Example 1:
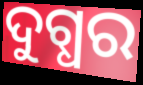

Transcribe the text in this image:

ଦୁଗ୍ଧର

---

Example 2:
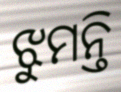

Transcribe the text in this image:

ଝୁମନ୍ତି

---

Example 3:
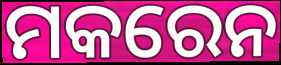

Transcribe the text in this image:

ମକରେନ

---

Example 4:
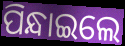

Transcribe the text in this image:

ପିନ୍ଧାଇଲେ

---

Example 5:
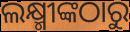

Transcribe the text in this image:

ଲକ୍ଷ୍ମୀଙ୍କଠାରୁ